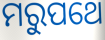
ମରୁପଥେ